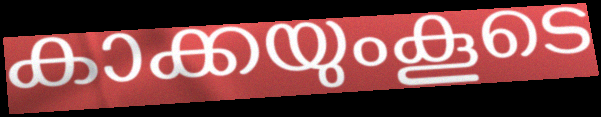
കാക്കയുംകൂടെ